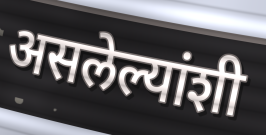
असलेल्यांशी